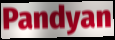
Pandyan